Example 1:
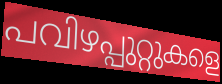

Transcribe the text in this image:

പവിഴപ്പുറ്റുകളെ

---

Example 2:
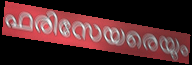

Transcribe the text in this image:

ഫരിസേയരെയും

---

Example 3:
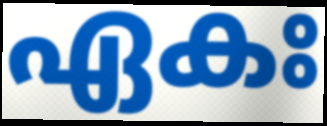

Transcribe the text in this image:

ഏകഃ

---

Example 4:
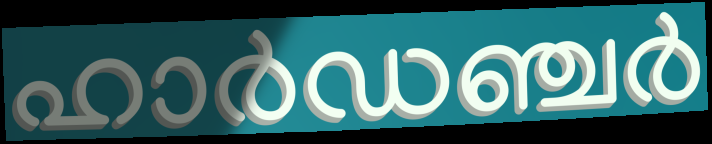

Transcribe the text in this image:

ഹാർഡഞ്ചർ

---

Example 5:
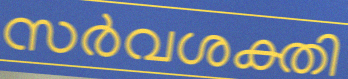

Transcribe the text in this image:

സർവശക്തി